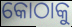
କୋଠାକୁ